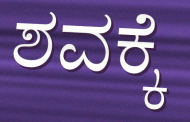
ಶವಕ್ಕೆ